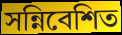
সন্নিবেশিত